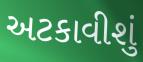
અટકાવીશું